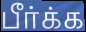
பீர்க்க